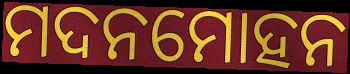
ମଦନମୋହନ